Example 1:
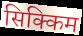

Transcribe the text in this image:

सिक्किम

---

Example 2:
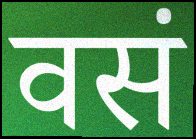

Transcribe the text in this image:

वसं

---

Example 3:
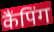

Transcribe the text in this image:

कैंपिंग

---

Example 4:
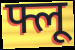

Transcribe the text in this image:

फ्लू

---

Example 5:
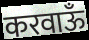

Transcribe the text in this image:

करवाऊँ